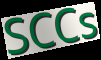
SCCs